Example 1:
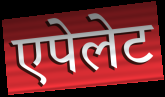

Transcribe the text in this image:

एपेलेट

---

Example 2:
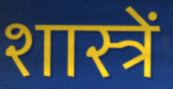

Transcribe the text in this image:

शास्त्रें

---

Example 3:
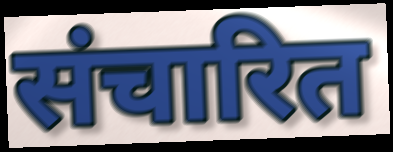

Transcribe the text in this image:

संचारित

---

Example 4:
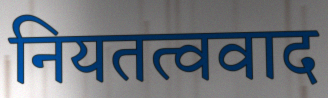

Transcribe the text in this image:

नियतत्ववाद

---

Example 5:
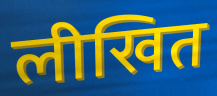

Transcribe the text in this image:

लीखित